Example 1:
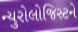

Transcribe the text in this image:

ન્યુરોલોજિસ્ટને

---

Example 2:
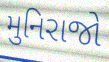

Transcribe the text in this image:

મુનિરાજો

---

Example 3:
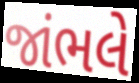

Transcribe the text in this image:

જાંભલે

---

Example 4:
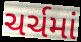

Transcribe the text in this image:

ચર્ચમાં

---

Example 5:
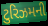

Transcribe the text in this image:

ટુરિઝમની